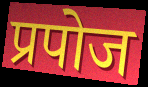
प्रपोज